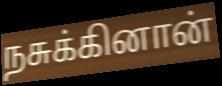
நசுக்கினான்